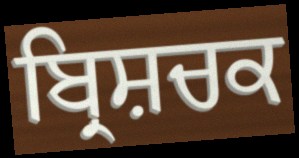
ਬ੍ਰਿਸ਼ਚਕ